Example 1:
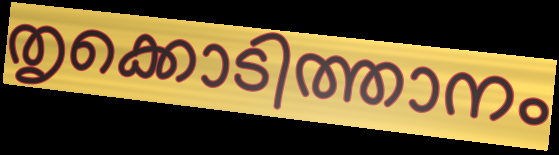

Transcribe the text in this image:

തൃക്കൊടിത്താനം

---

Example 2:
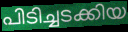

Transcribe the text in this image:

പിടിച്ചടക്കിയ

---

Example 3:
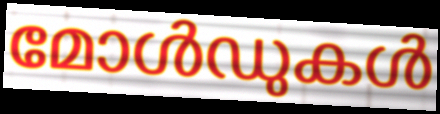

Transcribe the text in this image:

മോൾഡുകൾ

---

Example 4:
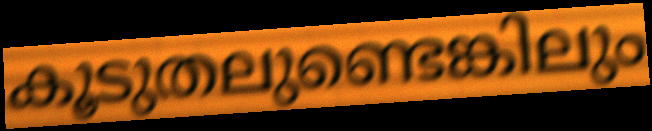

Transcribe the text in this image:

കൂടുതലുണ്ടെങ്കിലും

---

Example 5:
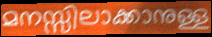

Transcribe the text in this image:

മനസ്സിലാക്കാനുള്ള